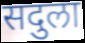
सदुला